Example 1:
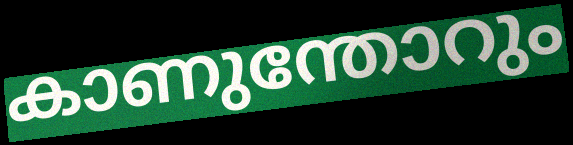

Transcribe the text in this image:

കാണുന്തോറും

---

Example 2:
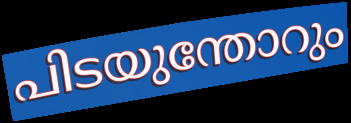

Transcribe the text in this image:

പിടയുന്തോറും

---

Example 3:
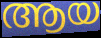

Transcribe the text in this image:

ആയ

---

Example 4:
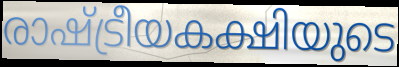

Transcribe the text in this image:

രാഷ്ട്രീയകക്ഷിയുടെ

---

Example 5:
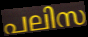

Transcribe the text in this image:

പലിസ